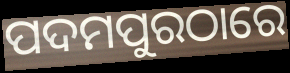
ପଦମପୁରଠାରେ